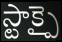
స్టాక్పై